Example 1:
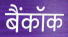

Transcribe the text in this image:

बैंकॉक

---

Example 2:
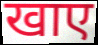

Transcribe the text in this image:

खाए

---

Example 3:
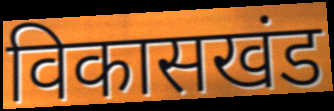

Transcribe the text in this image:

विकासखंड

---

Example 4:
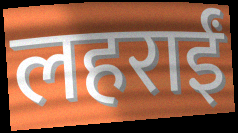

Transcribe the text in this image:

लहराईं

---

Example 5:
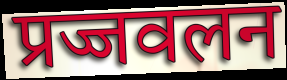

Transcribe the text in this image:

प्रज्जवलन